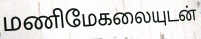
மணிமேகலையுடன்